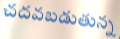
చదవబడుతున్న